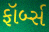
ફૉર્બ્સ